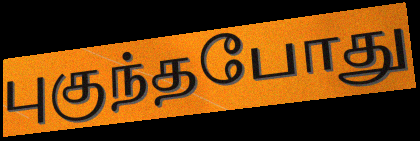
புகுந்தபோது